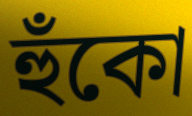
হুঁকো